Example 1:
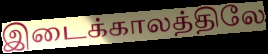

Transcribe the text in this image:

இடைக்காலத்திலே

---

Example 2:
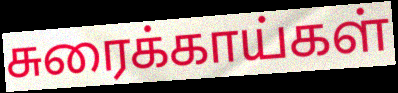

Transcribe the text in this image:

சுரைக்காய்கள்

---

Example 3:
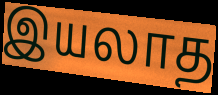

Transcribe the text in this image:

இயலாத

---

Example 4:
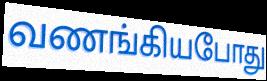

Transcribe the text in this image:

வணங்கியபோது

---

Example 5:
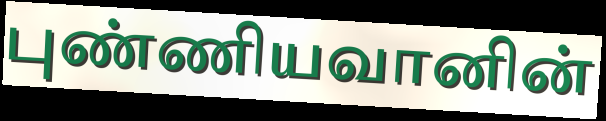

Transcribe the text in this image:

புண்ணியவானின்